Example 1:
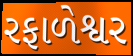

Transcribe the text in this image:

રફાળેશ્વર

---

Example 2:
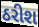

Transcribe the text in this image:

ઠરીશ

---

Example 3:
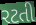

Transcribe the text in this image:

રટતી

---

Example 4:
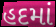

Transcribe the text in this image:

હદમાં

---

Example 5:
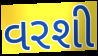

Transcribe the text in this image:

વરશી